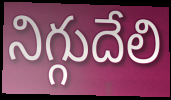
నిగ్గుదేలి